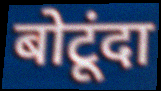
बोटूंदा